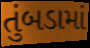
તુંબડામાં